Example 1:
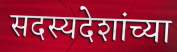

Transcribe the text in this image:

सदस्यदेशांच्या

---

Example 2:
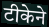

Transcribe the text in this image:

टीकेने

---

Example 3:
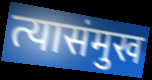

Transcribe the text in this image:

त्यासंमुख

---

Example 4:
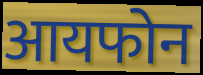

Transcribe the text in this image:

आयफोन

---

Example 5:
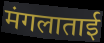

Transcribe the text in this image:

मंगलाताई